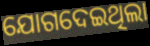
ଯୋଗଦେଇଥିଲା